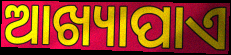
ଆଖ୍ୟାପାଏ